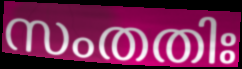
സംതതിഃ